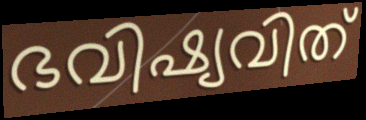
ഭവിഷ്യവിത്